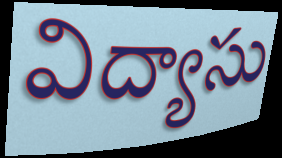
విద్యాసు